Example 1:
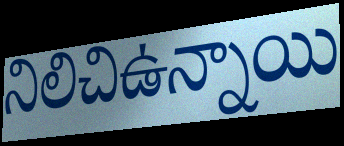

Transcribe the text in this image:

నిలిచిఉన్నాయి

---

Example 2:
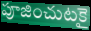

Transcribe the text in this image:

పూజించుటకై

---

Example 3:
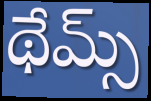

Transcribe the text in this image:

థేమ్స్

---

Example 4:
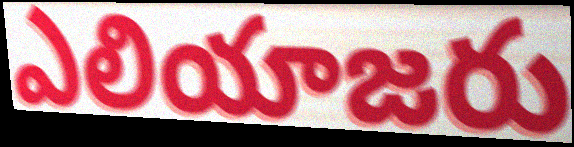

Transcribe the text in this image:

ఎలియాజరు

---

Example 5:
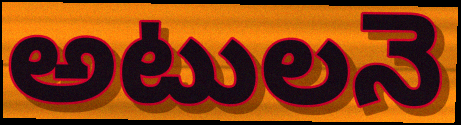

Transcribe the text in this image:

అటులనె